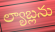
ల్యాబ్లను